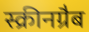
स्क्रीनग्रैब